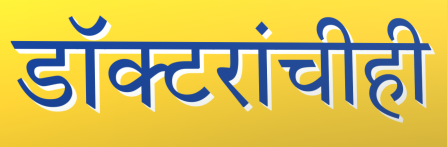
डॉक्टरांचीही